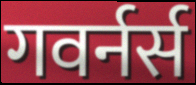
गवर्नर्स